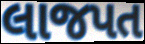
લાજપત